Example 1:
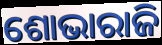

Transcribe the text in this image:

ଶୋଭାରାଜି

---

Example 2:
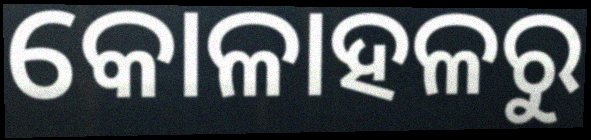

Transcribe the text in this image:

କୋଳାହଳରୁ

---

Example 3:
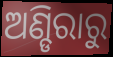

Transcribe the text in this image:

ଅଣ୍ଡିରାରୁ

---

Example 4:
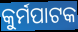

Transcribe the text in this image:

କୁର୍ମପାଟକ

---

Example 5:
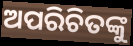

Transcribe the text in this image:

ଅପରିଚିତଙ୍କୁ